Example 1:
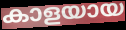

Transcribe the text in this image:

കാളയായ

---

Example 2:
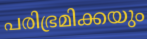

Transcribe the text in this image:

പരിഭ്രമിക്കയും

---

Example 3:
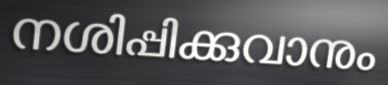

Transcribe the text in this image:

നശിപ്പിക്കുവാനും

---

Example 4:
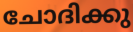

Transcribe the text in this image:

ചോദിക്കു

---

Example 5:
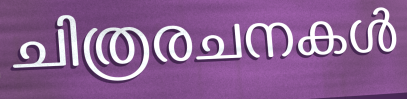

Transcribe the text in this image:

ചിത്രരചനകൾ